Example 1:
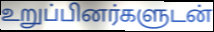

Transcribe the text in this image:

உறுப்பினர்களுடன்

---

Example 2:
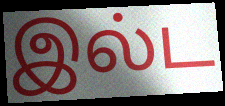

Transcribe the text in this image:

இல்ட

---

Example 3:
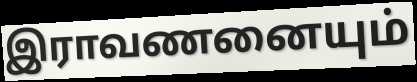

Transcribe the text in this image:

இராவணனையும்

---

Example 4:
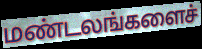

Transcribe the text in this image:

மண்டலங்களைச்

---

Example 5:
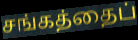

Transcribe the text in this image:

சங்கத்தைப்